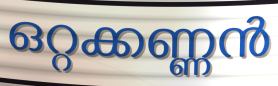
ഒറ്റക്കണ്ണൻ